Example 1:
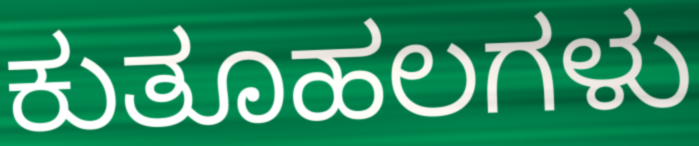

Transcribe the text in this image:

ಕುತೂಹಲಗಳು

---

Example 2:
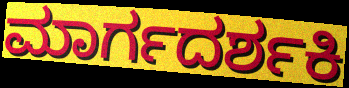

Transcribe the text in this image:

ಮಾರ್ಗದರ್ಶಕಿ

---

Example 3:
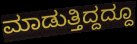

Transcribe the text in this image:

ಮಾಡುತ್ತಿದ್ದದ್ದೂ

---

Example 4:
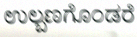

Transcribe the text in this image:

ಉಲ್ಬಣಗೊಂಡರೆ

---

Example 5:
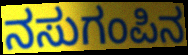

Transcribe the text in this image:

ನಸುಗಂಪಿನ